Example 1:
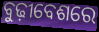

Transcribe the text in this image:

ବୁଢ଼ୀବେଶରେ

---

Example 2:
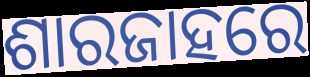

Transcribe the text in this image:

ଶାରଜାହରେ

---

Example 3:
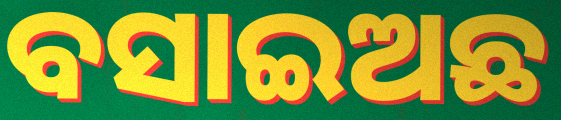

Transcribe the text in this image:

ବସାଇଅଛ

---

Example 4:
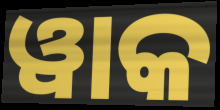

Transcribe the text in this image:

ୱାକ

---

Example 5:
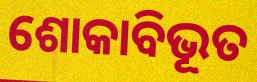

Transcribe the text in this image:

ଶୋକାବିଭୂତ